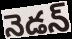
నెడన్